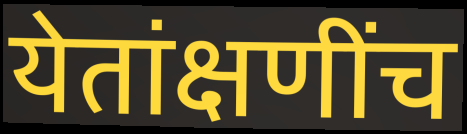
येतांक्षणींच